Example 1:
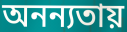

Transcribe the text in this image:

অনন্যতায়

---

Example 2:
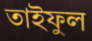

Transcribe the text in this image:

তাইফুল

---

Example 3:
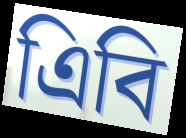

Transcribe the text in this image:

এিবি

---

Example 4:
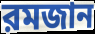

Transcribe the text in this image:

রমজান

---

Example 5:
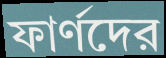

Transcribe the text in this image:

ফার্ণদের